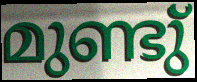
മുണ്ടു്